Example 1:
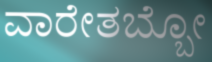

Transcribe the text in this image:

ವಾರೇತಬ್ಬೋ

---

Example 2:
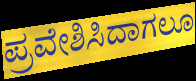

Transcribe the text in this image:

ಪ್ರವೇಶಿಸಿದಾಗಲೂ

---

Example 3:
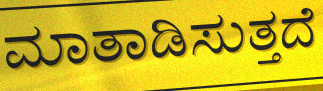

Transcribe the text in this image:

ಮಾತಾಡಿಸುತ್ತದೆ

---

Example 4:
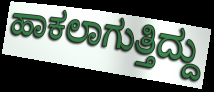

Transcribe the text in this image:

ಹಾಕಲಾಗುತ್ತಿದ್ದು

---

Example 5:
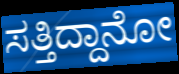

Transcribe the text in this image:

ಸತ್ತಿದ್ದಾನೋ